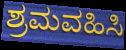
ಶ್ರಮವಹಿಸಿ